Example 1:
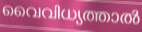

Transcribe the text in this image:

വൈവിധ്യത്താൽ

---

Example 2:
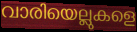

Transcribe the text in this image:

വാരിയെല്ലുകളെ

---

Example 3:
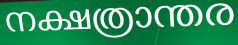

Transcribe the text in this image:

നക്ഷത്രാന്തര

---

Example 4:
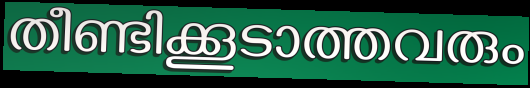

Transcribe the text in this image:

തീണ്ടിക്കൂടാത്തവരും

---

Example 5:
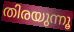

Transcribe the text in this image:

തിരയുന്നൂ